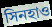
সিনহাও